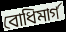
বোধিমার্গ